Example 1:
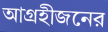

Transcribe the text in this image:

আগ্রহীজনের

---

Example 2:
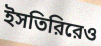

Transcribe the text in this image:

ইসতিরিরেও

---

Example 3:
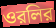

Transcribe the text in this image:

ওরলির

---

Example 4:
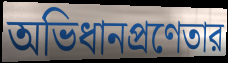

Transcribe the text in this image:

অভিধানপ্রণেতার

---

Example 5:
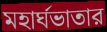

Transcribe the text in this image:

মহার্ঘভাতার